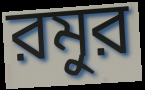
রমুর